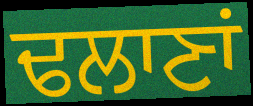
ਢਲਾਣਾਂ